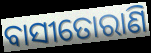
ବାସୀତୋରାଣି